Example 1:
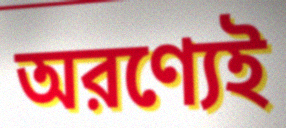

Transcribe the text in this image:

অরণ্যেই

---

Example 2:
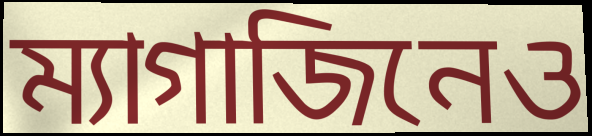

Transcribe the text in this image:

ম্যাগাজিনেও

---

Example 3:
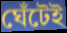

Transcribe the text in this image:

ঘেঁটেই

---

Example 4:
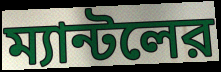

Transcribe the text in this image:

ম্যান্টলের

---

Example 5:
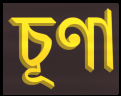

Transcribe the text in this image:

চূণা